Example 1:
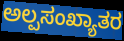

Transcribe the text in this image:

ಅಲ್ಪಸಂಖ್ಯಾತರ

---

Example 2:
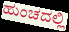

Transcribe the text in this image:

ಹುಂಚದಲ್ಲಿ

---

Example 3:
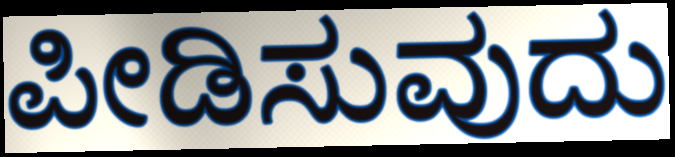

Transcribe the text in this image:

ಪೀಡಿಸುವುದು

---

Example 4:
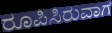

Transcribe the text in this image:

ರೂಪಿಸಿರುವಾಗ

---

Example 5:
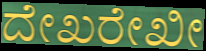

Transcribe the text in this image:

ದೇಖರೇಖೀ